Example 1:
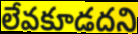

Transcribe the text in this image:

లేవకూడదని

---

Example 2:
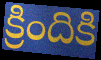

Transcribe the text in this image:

క్రిందికి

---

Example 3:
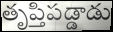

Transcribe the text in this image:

తృప్తిపడ్డాడు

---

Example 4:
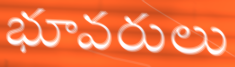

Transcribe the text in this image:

భూవరులు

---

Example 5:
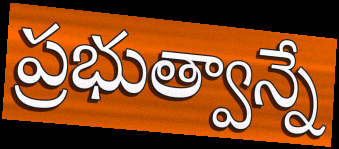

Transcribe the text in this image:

ప్రభుత్వాన్నే